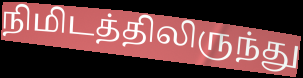
நிமிடத்திலிருந்து